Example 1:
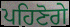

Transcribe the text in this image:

ਪਹਿਣੋਗੇ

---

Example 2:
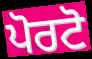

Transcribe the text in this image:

ਪੋਰਟੋ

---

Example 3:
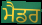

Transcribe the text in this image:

ਮੈਡਰ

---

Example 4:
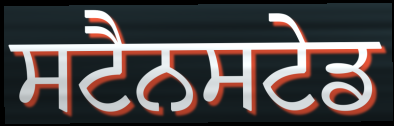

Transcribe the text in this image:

ਸਟੈਨਸਟੇਡ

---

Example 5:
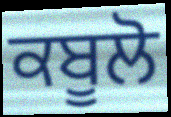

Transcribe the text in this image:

ਕਬੂਲੋ